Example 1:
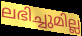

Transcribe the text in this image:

ലഭിച്ചുമില്ല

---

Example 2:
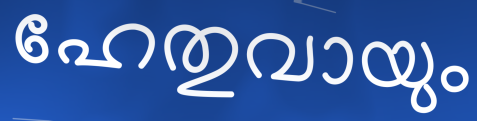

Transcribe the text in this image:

ഹേതുവായും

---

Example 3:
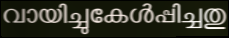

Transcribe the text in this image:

വായിച്ചുകേൾപ്പിച്ചതു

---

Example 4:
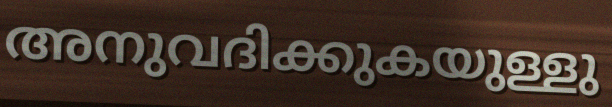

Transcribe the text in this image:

അനുവദിക്കുകയുള്ളു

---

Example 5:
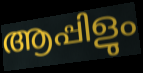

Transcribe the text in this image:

ആപ്പിളും